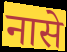
नासे